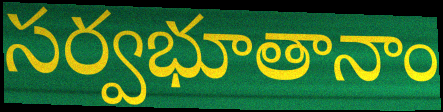
సర్వభూతానాం